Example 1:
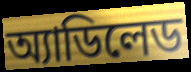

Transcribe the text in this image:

অ্যাডিলেড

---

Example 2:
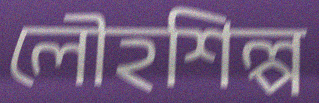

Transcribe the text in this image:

লৌহশিল্প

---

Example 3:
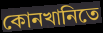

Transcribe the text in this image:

কোনখানিতে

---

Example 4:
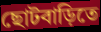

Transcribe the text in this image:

ছোটবাড়িতে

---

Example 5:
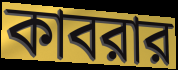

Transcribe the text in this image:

কাবরার